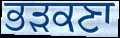
ਭੜਕਣਾ